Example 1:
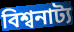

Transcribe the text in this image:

বিশ্বনাট্য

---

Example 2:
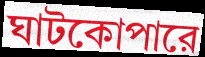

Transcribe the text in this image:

ঘাটকোপারে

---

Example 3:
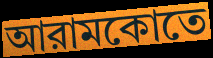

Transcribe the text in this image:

আরামকোতে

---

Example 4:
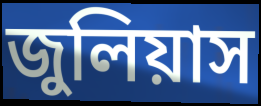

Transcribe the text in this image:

জুলিয়াস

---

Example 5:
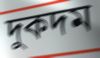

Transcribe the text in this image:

দুকদম